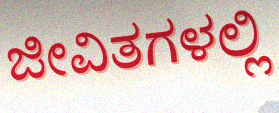
ಜೀವಿತಗಳಲ್ಲಿ